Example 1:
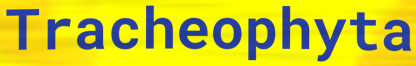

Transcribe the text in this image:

Tracheophyta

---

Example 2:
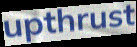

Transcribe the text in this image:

upthrust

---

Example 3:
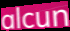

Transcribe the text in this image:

alcun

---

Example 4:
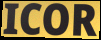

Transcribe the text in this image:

ICOR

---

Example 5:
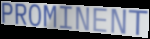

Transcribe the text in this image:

PROMINENT